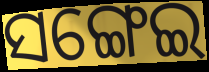
ସଙ୍ଗେଇ